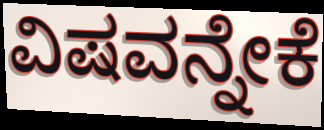
ವಿಷವನ್ನೇಕೆ